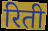
रिती